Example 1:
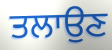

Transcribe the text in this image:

ਤਲਾਉਣ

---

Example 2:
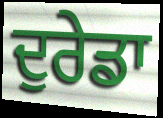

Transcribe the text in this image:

ਦੁਰੇਡਾ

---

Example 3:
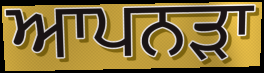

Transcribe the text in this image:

ਆਪਨੜਾ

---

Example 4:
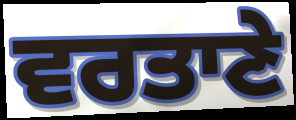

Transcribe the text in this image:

ਵਰਤਾਣੇ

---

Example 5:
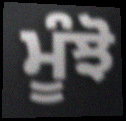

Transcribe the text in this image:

ਮੂੰਝੋ